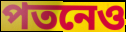
পতনেও